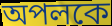
অপলকে